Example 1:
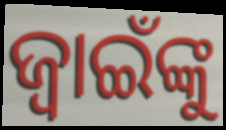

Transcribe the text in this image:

ଜ୍ବାଇଁଙ୍କୁ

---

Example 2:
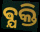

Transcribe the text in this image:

ଵ୍ଯକ୍ତି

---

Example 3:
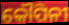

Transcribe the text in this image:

କୌପିନୀ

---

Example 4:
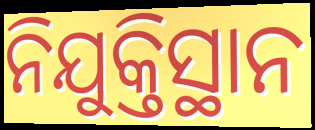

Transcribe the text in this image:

ନିଯୁକ୍ତିସ୍ଥାନ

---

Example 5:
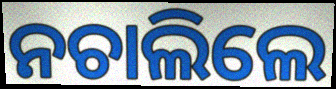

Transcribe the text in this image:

ନଚାଲିଲେ